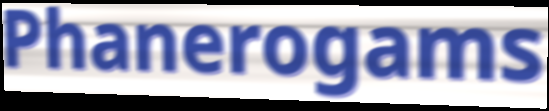
Phanerogams